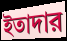
ইতাদার